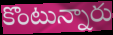
కొంటున్నారు